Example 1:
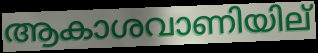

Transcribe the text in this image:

ആകാശവാണിയില്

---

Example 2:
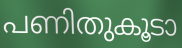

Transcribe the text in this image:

പണിതുകൂടാ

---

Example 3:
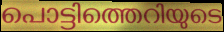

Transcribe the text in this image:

പൊട്ടിത്തെറിയുടെ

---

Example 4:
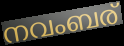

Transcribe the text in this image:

നവംബര്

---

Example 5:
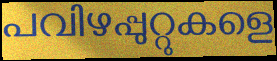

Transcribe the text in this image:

പവിഴപ്പുറ്റുകളെ